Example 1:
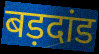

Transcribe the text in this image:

बड़दांड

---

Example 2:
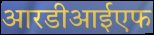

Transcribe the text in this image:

आरडीआईएफ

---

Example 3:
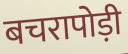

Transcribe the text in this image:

बचरापोड़ी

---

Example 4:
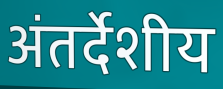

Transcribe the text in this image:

अंतर्देशीय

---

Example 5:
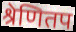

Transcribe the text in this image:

श्रेणितप